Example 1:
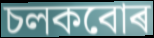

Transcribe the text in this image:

চলকবোৰ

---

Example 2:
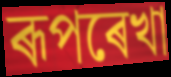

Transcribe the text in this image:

ৰূপৰেখা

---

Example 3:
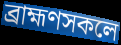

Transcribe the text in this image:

ব্ৰাহ্মণসকলে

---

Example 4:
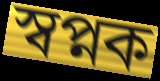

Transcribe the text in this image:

স্বপ্নক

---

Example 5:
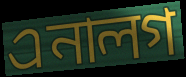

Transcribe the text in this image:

এনালগ